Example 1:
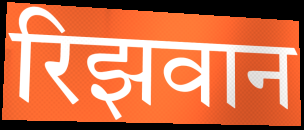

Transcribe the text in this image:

रिझवान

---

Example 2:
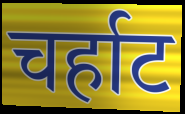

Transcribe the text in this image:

चर्हाट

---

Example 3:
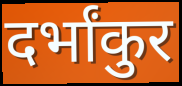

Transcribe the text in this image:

दर्भांकुर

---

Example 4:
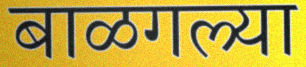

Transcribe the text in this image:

बाळगल्या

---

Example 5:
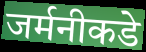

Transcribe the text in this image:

जर्मनीकडे